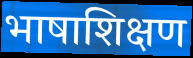
भाषाशिक्षण